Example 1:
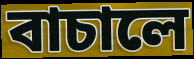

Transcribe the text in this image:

বাচালে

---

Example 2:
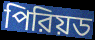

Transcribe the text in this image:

পিরিয়ড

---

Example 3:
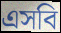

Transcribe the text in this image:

এসবি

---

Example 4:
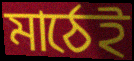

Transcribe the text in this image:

মাঠেই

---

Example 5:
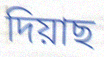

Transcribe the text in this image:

দিয়াছ